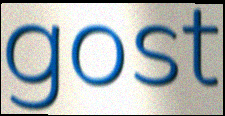
gost